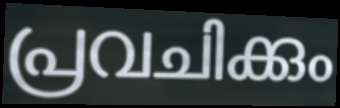
പ്രവചിക്കും